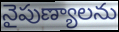
నైపుణ్యాలను